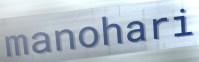
manohari